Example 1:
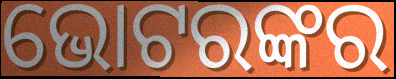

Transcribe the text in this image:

ଭୋଟରଙ୍କର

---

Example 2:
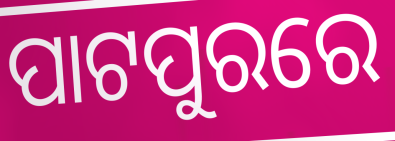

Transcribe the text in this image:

ପାଟପୁରରେ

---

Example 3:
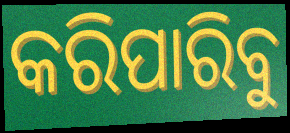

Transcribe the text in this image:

କରିପାରିବୁ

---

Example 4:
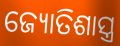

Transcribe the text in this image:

ଜ୍ୟୋତିଶାସ୍ତ୍ର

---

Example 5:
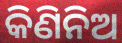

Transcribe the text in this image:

କିଣିନିଅ